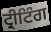
ਟ੍ਰੀਟਿੰਗ